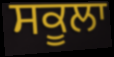
ਸਕੂਲਾ